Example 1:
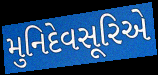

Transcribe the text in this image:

મુનિદેવસૂરિએ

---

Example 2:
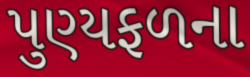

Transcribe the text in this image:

પુણ્યફળના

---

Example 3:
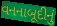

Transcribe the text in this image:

વનનાબૂદીનું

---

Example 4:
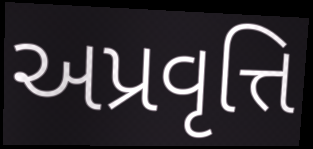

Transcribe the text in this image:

અપ્રવૃત્તિ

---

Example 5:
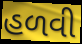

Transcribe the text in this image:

હળવી